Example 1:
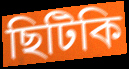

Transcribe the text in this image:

ছিটিকি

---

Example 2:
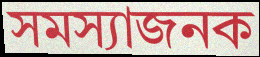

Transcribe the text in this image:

সমস্যাজনক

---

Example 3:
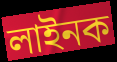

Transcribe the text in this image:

লাইনক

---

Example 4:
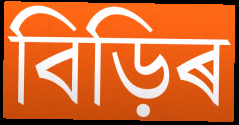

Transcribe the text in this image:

বিড়িৰ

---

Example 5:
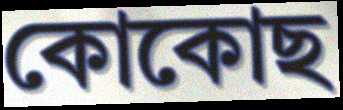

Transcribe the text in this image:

কোকোছ